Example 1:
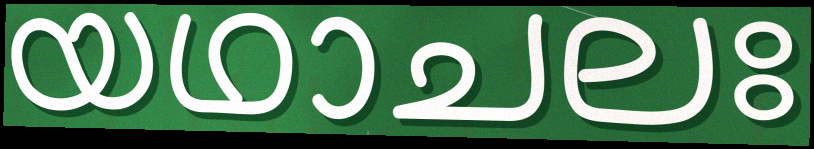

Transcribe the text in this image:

യഥാചലഃ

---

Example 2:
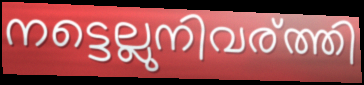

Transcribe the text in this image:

നട്ടെല്ലുനിവര്ത്തി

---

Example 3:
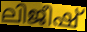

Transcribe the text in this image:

ലിജീഷ്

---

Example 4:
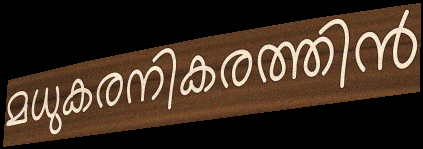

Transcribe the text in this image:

മധുകരനികരത്തിൻ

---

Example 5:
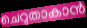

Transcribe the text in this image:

ചെറുതാകാൻ